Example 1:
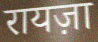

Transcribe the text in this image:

रायज़ा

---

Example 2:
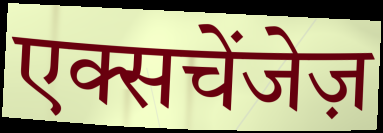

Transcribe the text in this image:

एक्सचेंजेज़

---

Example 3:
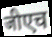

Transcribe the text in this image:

जीएच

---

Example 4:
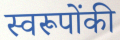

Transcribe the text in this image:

स्वरूपोंकी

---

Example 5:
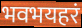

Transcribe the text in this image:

भवभयहरं